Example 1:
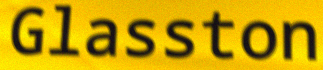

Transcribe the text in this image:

Glasston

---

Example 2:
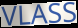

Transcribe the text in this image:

VLASS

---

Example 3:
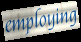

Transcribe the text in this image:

employing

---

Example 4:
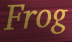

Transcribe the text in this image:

Frog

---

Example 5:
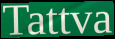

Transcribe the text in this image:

Tattva